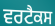
ਵਰਟੈਕਸ